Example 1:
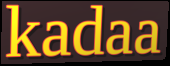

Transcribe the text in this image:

kadaa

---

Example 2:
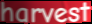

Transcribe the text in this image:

harvest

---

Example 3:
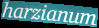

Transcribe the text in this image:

harzianum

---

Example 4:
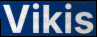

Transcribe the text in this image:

Vikis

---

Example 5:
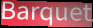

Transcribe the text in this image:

Barquet